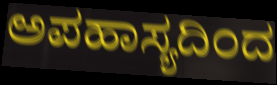
ಅಪಹಾಸ್ಯದಿಂದ